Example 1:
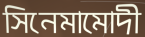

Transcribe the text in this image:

সিনেমামোদী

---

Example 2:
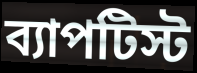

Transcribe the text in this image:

ব্যাপটিস্ট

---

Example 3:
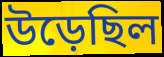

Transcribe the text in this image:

উড়েছিল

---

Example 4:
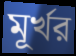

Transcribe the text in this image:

মূর্খর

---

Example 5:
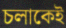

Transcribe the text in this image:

চলাকেই